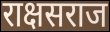
राक्षसराज